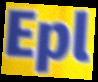
Epl